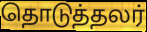
தொடுத்தலர்